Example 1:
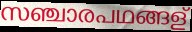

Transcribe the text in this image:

സഞ്ചാരപഥങ്ങള്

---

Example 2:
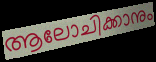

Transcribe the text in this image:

ആലോചിക്കാനും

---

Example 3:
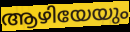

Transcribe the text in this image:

ആഴിയേയും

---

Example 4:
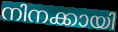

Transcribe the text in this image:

നിനക്കായി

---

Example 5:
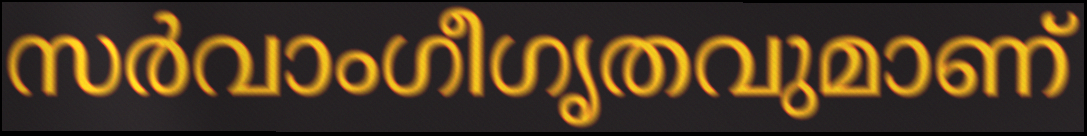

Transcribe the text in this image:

സർവാംഗീഗൃതവുമാണ്